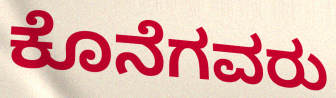
ಕೊನೆಗವರು